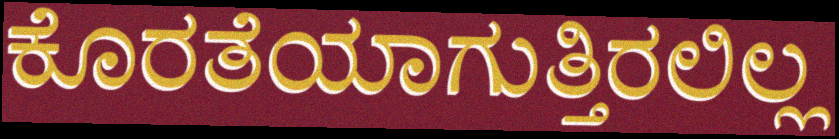
ಕೊರತೆಯಾಗುತ್ತಿರಲಿಲ್ಲ